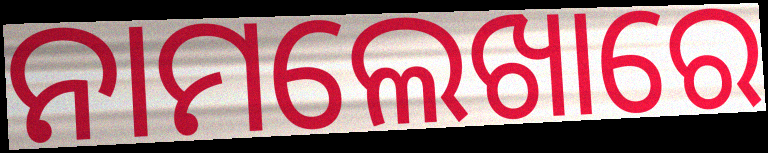
ନାମଲେଖାରେ